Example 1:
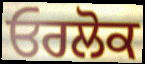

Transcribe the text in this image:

ਓਰਲੋਕ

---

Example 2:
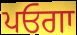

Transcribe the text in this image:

ਪਓਗਾ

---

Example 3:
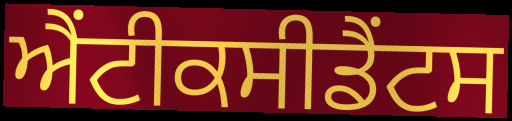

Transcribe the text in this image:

ਐਂਟੀਕਸੀਡੈਂਟਸ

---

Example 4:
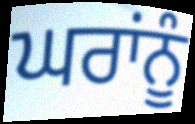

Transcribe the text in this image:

ਘਰਾਂਨੂੰ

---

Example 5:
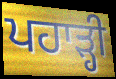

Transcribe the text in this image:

ਪਹਾੜ੍ਹੀ